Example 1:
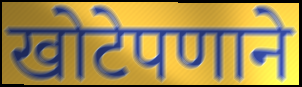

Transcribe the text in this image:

खोटेपणाने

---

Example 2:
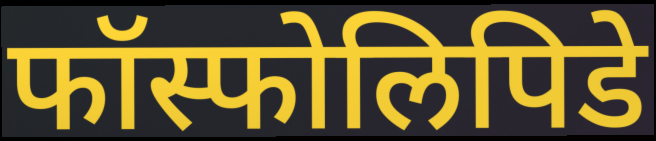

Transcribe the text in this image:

फॉस्फोलिपिडे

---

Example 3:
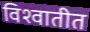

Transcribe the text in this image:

विश्वातीत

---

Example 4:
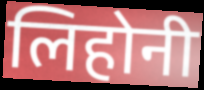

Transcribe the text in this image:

लिहोनी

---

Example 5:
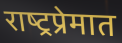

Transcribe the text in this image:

राष्ट्रप्रेमात